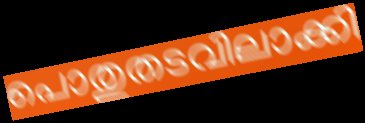
പൊതുതടവിലാക്കി